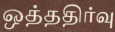
ஒத்ததிர்வு